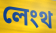
লেংথ